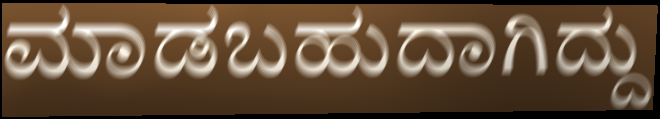
ಮಾಡಬಹುದಾಗಿದ್ದು